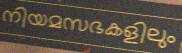
നിയമസഭകളിലും